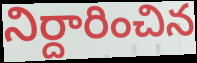
నిర్దారించిన